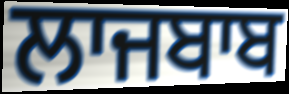
ਲਾਜਬਾਬ